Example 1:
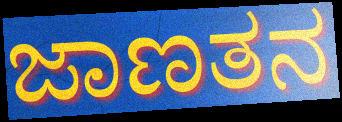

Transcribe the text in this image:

ಜಾಣತನ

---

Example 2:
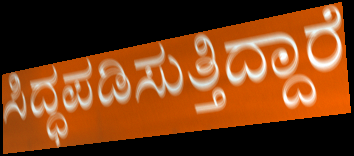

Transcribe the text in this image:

ಸಿದ್ಧಪಡಿಸುತ್ತಿದ್ದಾರೆ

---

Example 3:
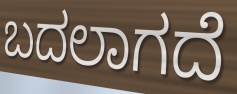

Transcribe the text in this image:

ಬದಲಾಗದೆ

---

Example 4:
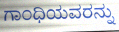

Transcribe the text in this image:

ಗಾಂಧಿಯವರನ್ನು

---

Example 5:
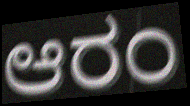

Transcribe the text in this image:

ಆರಂ